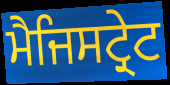
ਮੈਜਿਸਟ੍ਰੇਟ